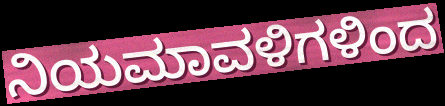
ನಿಯಮಾವಳಿಗಳಿಂದ